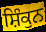
ਸ਼ਿੰਕੁਨ